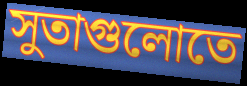
সুতাগুলোতে